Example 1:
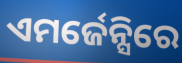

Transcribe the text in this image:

ଏମର୍ଜେନ୍ସିରେ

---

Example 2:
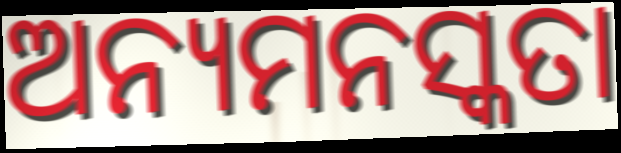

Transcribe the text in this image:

ଅନ୍ୟମନସ୍କତା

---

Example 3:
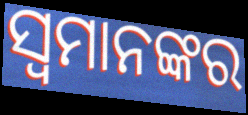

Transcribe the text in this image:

ସ୍ୱମାନଙ୍କର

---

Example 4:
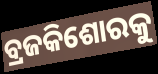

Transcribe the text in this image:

ବ୍ରଜକିଶୋରକୁ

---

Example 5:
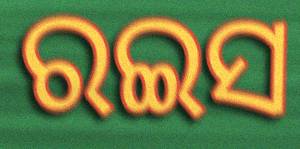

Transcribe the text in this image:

ରଇସ